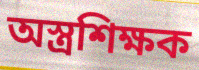
অস্ত্রশিক্ষক